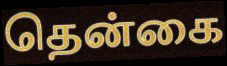
தென்கை